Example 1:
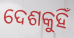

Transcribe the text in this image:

ଦେଶକୁହିଁ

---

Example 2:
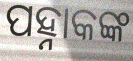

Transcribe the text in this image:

ପହ୍ନାକଙ୍କ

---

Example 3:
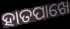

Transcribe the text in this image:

ହାତପାଖେ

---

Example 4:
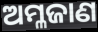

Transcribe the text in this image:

ଅମ୍ଳଜାଣ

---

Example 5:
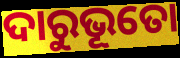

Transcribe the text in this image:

ଦାରୁଭୂତୋ